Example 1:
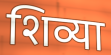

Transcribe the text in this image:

शिव्या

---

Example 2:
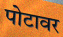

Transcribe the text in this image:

पोटावर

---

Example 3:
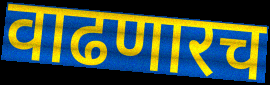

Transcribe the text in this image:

वाढणारच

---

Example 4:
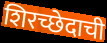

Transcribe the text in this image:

शिरच्छेदाची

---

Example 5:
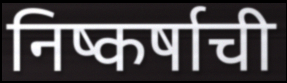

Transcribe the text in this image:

निष्कर्षाची